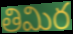
తిమిర